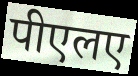
पीएलए